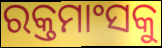
ରକ୍ତମାଂସକୁ